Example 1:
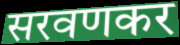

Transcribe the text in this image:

सरवणकर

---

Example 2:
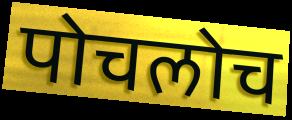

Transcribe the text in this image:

पोचलोच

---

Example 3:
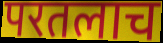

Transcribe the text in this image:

परतलाच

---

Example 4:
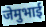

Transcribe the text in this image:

जेमुभाई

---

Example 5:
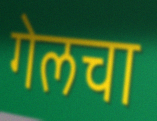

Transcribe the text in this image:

गेलचा